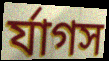
র্যাগস